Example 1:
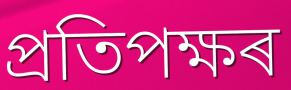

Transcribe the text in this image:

প্ৰতিপক্ষৰ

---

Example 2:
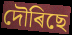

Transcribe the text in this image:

দৌৰিছে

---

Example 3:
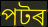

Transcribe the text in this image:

পটৰ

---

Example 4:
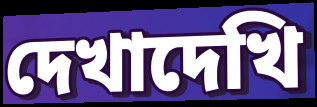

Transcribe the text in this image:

দেখাদেখি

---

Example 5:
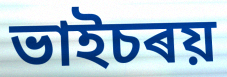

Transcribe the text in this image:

ভাইচৰয়